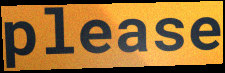
please